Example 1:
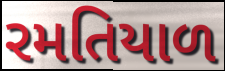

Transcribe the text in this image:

રમતિયાળ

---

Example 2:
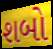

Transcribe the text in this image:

શબો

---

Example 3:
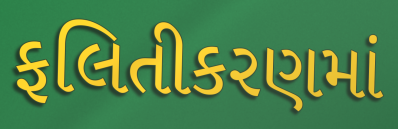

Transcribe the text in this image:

ફલિતીકરણમાં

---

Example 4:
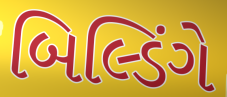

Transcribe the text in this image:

બિલ્ડિંગે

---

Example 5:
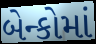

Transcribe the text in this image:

બેન્કોમાં